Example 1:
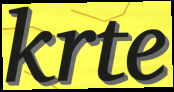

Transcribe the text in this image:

krte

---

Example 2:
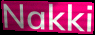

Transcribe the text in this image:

Nakki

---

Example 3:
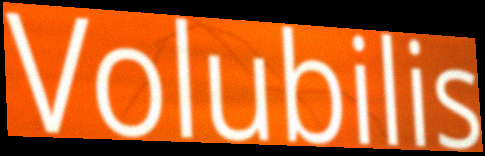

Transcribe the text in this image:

Volubilis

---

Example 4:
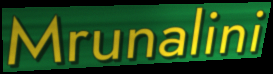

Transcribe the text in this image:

Mrunalini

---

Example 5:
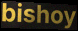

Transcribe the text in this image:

bishoy